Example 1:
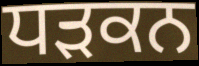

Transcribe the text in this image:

ਧੜਕਨ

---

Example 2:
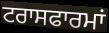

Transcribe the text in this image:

ਟਰਾਸਫਾਰਮਾਂ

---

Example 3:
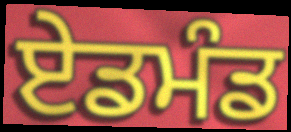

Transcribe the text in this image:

ਏਡਮੰਡ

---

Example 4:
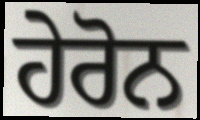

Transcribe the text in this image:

ਹੇਰੋਨ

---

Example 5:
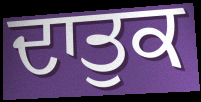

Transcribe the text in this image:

ਦਾਤੁਕ